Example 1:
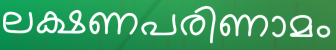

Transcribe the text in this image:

ലക്ഷണപരിണാമം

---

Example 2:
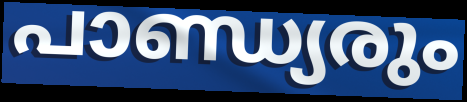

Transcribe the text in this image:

പാണ്ഡ്യരും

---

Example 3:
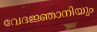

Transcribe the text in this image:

വേദജ്ഞാനിയും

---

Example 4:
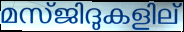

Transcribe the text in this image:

മസ്ജിദുകളില്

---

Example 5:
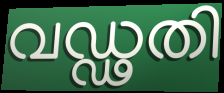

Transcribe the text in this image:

വഡ്ഢതി